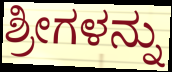
ಶ್ರೀಗಳನ್ನು